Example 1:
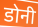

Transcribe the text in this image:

डोनी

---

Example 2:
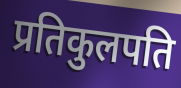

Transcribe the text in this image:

प्रतिकुलपति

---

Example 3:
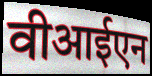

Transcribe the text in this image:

वीआईएन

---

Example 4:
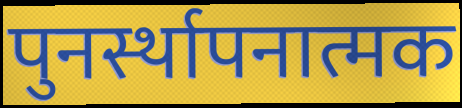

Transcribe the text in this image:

पुनर्स्थापनात्मक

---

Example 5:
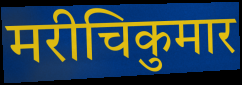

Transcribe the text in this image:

मरीचिकुमार